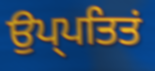
ਉਪ੍ਪਤਿਤਂ